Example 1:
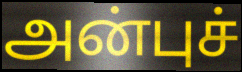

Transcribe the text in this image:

அன்புச்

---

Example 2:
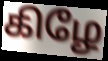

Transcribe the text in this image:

கிழே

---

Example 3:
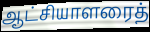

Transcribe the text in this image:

ஆட்சியாளரைத்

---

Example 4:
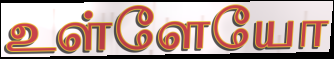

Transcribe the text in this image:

உள்ளேயோ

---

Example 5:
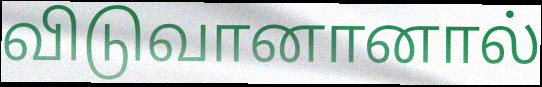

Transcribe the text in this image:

விடுவானானால்